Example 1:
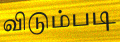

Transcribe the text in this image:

விடும்படி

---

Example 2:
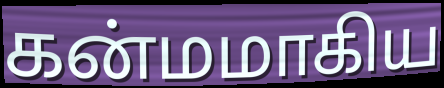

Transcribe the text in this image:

கன்மமாகிய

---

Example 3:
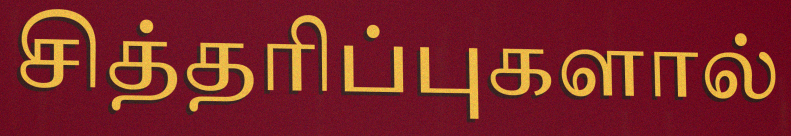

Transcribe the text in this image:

சித்தரிப்புகளால்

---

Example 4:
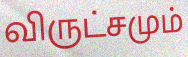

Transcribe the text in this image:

விருட்சமும்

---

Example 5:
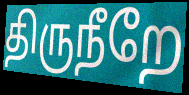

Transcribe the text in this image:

திருநீறே